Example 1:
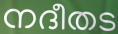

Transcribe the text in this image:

നദീതട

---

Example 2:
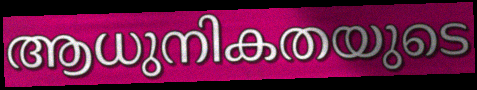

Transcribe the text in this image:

ആധുനികതയുടെ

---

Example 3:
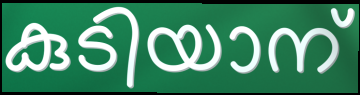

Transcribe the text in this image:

കുടിയാന്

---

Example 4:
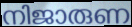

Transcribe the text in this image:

നിജാരുണ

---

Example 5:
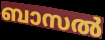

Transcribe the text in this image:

ബാസൽ